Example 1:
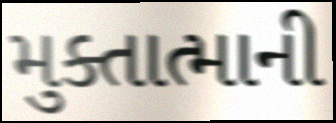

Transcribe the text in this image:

મુક્તાત્માની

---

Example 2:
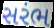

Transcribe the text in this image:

સરંભ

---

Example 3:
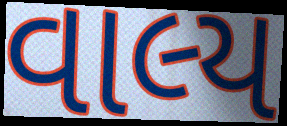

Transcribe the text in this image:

વાલ્ય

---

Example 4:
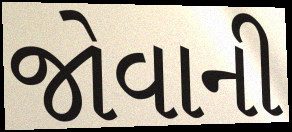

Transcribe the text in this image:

જોવાની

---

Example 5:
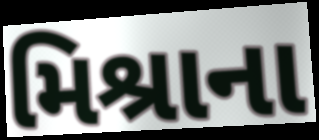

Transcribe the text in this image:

મિશ્રાના